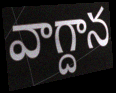
వాగ్దాన